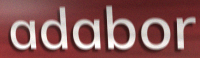
adabor